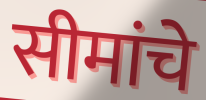
सीमांचे